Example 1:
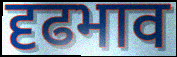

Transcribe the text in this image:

दृढभाव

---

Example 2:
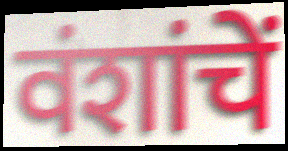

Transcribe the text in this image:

वंशांचें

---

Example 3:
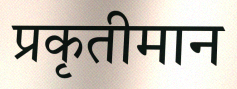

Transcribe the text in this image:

प्रकृतीमान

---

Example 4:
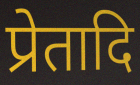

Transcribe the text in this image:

प्रेतादि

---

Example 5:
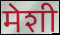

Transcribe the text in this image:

मेशी